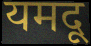
यमदू